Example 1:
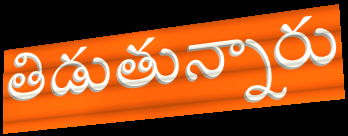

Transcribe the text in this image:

తిడుతున్నారు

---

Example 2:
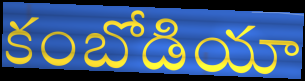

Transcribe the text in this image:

కంబోడియా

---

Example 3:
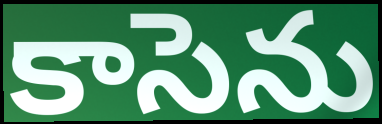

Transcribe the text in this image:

కాసెను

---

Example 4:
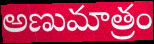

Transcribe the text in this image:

అణుమాత్రం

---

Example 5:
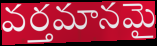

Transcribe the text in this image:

వర్తమానమై